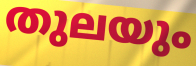
തുലയും